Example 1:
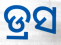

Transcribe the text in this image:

ଡ୍ରସ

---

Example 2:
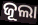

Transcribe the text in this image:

ଜୂଲା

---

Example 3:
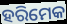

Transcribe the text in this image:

ହରିମେକ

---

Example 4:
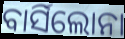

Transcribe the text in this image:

ବାର୍ସିଲୋନା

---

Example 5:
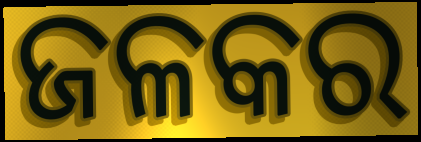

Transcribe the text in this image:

ଜଳକର